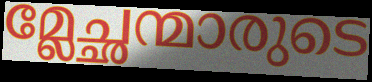
മ്ലേച്ഛന്മാരുടെ